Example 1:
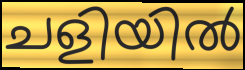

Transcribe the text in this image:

ചളിയിൽ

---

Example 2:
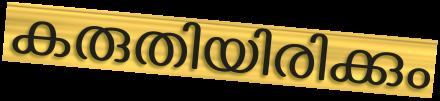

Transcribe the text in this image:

കരുതിയിരിക്കും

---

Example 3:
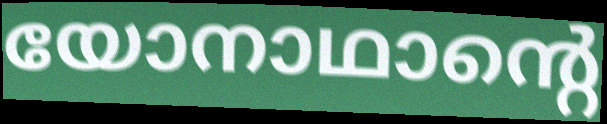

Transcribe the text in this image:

യോനാഥാന്റെ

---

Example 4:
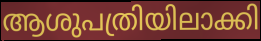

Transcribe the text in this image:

ആശുപത്രിയിലാക്കി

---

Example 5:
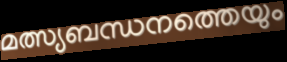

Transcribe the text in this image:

മത്സ്യബന്ധനത്തെയും